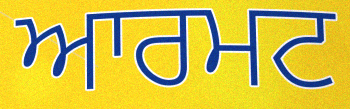
ਆਰਮਟ